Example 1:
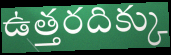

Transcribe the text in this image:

ఉత్తరదిక్కు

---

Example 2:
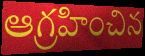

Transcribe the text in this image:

ఆగ్రహించిన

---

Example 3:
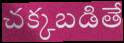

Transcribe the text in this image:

చక్కబడితే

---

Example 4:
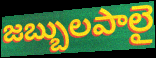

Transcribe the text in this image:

జబ్బులపాలై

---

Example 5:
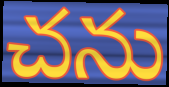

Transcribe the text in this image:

చను